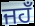
ਜਹਁ